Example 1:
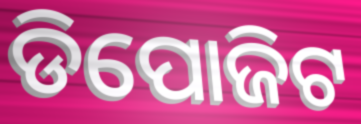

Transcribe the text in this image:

ଡିପୋଜିଟ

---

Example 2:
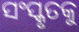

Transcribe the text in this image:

ସଂସ୍କୃତକୁ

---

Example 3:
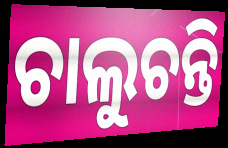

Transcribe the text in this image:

ଚାଲୁଚନ୍ତି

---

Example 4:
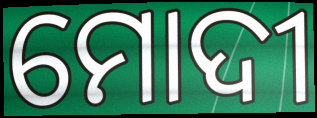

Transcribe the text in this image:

ମୋଦୀ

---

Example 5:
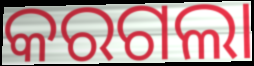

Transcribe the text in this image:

କରଗଲା